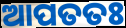
ଆପତତଃ